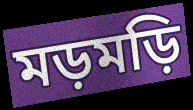
মড়মড়ি